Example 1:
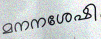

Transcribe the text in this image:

മനനശേഷി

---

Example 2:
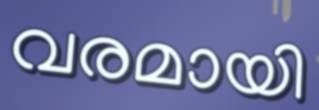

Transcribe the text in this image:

വരമായി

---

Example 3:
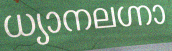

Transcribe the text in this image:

ധ്യാനലഗ്നാ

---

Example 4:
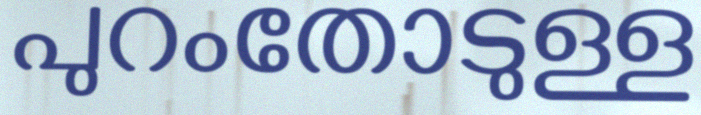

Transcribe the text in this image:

പുറംതോടുള്ള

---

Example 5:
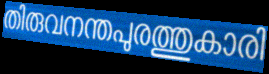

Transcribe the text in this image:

തിരുവനന്തപുരത്തുകാരി